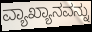
ವ್ಯಾಖ್ಯಾನವನ್ನು